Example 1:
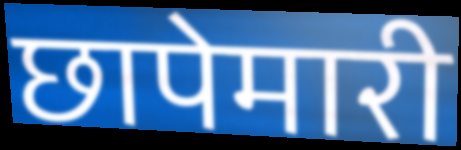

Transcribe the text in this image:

छापेमारी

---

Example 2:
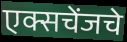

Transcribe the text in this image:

एक्सचेंजचे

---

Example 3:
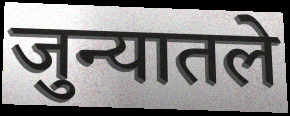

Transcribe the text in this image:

जुन्यातले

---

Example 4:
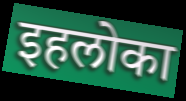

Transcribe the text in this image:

इहलोका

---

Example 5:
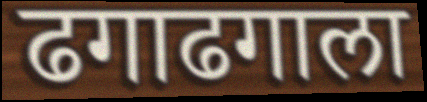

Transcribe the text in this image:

ढगाढगाला